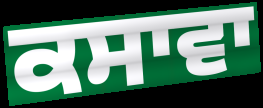
ਕਸਾਵਾ